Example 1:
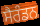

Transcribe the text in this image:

ਸੈਰੰਡਨ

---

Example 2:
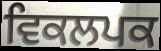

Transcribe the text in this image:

ਵਿਕਲਪਕ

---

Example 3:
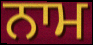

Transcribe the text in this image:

ਨਾਮ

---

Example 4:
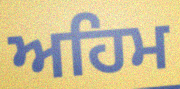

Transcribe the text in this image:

ਅਹਿਮ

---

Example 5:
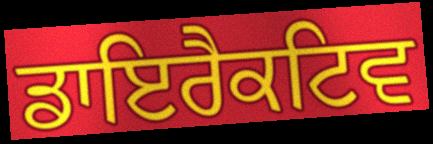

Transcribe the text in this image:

ਡਾਇਰੈਕਟਿਵ